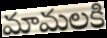
మామలకి